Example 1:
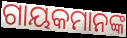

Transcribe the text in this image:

ଗାୟକମାନଙ୍କ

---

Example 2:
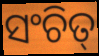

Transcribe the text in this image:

ସଂଚିତ୍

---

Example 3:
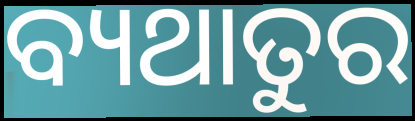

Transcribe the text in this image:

ବ୍ୟଥାତୁର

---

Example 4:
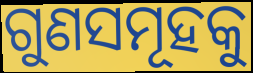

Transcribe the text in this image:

ଗୁଣସମୂହକୁ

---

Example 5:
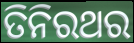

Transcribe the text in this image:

ତିନିରଥର